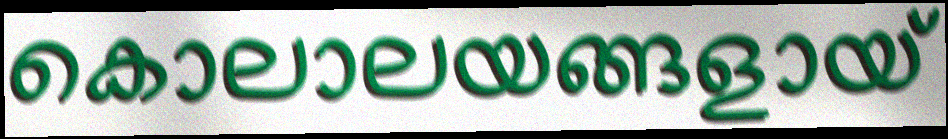
കൊലാലയങ്ങളായ്